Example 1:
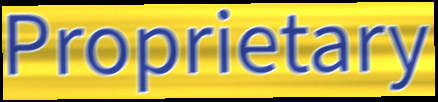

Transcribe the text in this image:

Proprietary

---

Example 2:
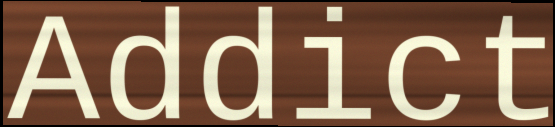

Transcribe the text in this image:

Addict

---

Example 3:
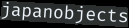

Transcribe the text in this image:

japanobjects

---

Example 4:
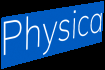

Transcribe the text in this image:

Physica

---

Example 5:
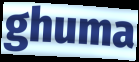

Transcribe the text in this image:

ghuma